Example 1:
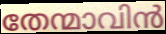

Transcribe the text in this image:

തേന്മാവിൻ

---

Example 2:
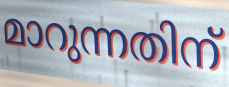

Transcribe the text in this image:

മാറുന്നതിന്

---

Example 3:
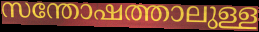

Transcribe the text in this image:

സന്തോഷത്താലുള്ള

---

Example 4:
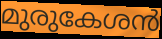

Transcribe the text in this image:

മുരുകേശൻ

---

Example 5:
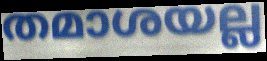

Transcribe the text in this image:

തമാശയല്ല